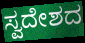
ಸ್ವದೇಶದ